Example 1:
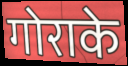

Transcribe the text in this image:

गोराके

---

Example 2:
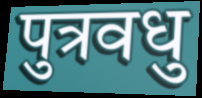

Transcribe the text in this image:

पुत्रवधु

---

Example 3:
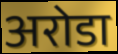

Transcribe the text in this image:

अरोडा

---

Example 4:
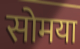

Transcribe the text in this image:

सोमया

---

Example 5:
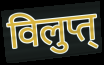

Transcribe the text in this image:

विलुप्त्